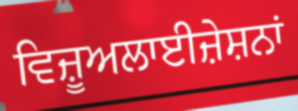
ਵਿਜ਼ੂਅਲਾਈਜ਼ੇਸ਼ਨਾਂ